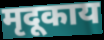
मृदूकाय